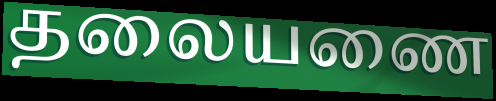
தலையணை